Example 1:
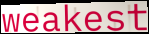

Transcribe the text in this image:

weakest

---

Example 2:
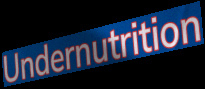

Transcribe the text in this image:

Undernutrition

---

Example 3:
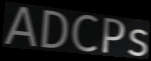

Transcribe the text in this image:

ADCPs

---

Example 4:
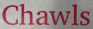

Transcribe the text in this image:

Chawls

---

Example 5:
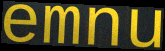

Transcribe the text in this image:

emnu